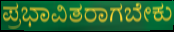
ಪ್ರಭಾವಿತರಾಗಬೇಕು